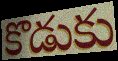
కొడుకు